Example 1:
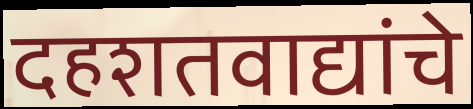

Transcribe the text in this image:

दहशतवाद्यांचे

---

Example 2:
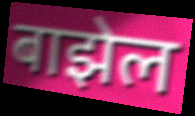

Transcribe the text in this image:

बाझेल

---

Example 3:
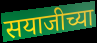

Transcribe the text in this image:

सयाजीच्या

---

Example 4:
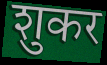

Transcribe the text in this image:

शुकर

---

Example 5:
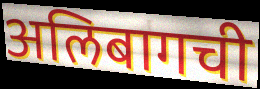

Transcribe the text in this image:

अलिबागची